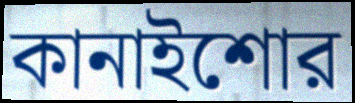
কানাইশোর